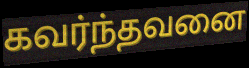
கவர்ந்தவனை